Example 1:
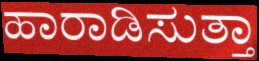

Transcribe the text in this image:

ಹಾರಾಡಿಸುತ್ತಾ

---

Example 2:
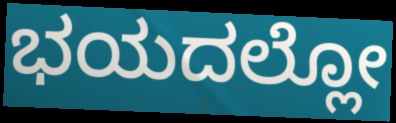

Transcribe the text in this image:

ಭಯದಲ್ಲೋ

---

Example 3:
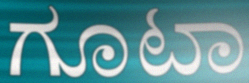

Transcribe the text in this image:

ಗೂಟಾ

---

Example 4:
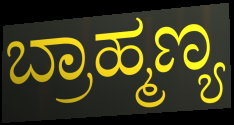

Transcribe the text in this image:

ಬ್ರಾಹ್ಮಣ್ಯ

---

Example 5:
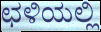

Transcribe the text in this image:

ಛಳಿಯಲ್ಲಿ